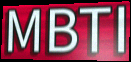
MBTI